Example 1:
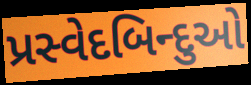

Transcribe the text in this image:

પ્રસ્વેદબિન્દુઓ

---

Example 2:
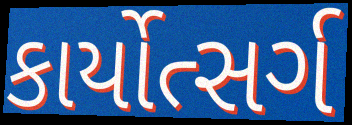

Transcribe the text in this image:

કાર્યોત્સર્ગ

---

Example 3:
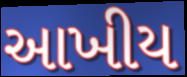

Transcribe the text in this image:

આખીય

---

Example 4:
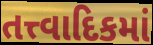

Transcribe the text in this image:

તત્ત્વાદિકમાં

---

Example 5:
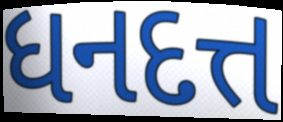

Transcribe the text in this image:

ધનદત્ત